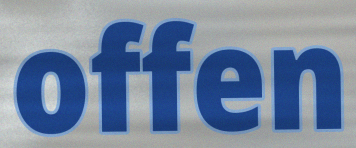
offen